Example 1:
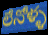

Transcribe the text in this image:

లేనోళ్ళ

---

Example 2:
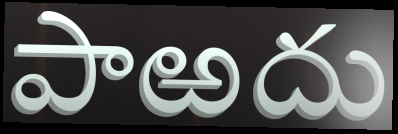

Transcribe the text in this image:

పాఱదు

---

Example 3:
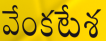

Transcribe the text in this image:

వేంకటేశ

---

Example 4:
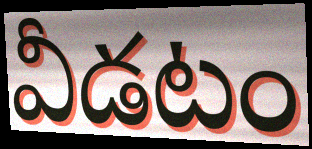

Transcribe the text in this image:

వీడటం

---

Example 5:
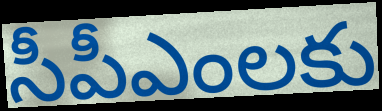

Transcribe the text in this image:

సీపీఎంలకు